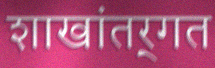
शाखांतर्गत